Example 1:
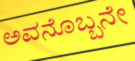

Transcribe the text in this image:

ಅವನೊಬ್ಬನೇ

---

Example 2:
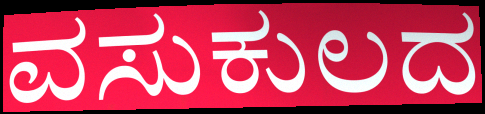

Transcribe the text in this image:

ವಸುಕುಲದ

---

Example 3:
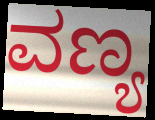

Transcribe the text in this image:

ವಣ್ಯ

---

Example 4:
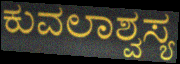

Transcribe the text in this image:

ಕುವಲಾಶ್ವಸ್ಯ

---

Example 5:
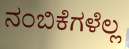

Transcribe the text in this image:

ನಂಬಿಕೆಗಳೆಲ್ಲ